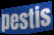
pestis